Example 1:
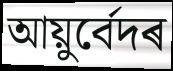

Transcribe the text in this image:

আয়ুৰ্বেদৰ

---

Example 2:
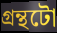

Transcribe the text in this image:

গ্ৰন্থটো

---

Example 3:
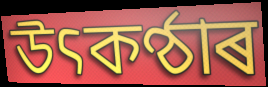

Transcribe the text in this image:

উৎকণ্ঠাৰ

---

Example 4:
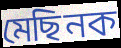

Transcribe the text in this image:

মেছিনক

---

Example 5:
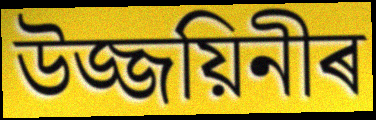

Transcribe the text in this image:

উজ্জয়িনীৰ